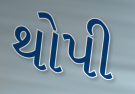
થોપી